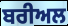
ਬਰੀਅਲ